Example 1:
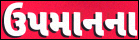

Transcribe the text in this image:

ઉપમાનના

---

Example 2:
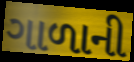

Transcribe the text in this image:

ગાળાની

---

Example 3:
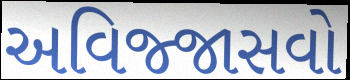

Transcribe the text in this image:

અવિજ્જાસવો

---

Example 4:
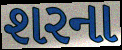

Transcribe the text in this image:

શરના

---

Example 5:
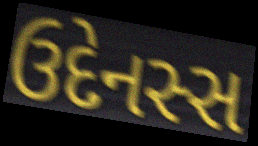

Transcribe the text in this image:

ઉદેનસ્સ